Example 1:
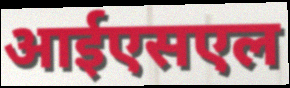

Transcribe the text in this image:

आईएसएल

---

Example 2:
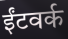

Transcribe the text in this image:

ईंटवर्क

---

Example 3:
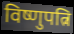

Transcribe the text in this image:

विष्णुपत्नि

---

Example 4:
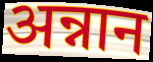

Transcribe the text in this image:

अन्नान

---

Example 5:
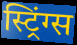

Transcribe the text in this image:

स्ट्रिंग्स